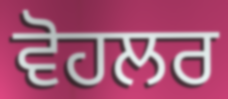
ਵੋਹਲਰ